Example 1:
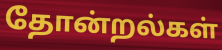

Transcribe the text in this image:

தோன்றல்கள்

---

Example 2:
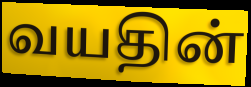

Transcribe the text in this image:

வயதின்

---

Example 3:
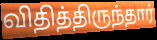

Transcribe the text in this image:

விதித்திருந்தார்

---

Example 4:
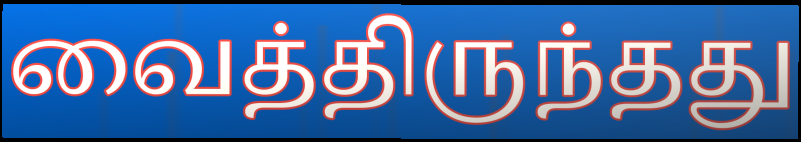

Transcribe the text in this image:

வைத்திருந்தது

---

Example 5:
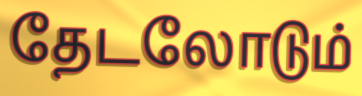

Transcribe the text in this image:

தேடலோடும்